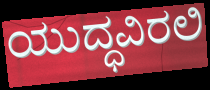
ಯುದ್ಧವಿರಲಿ